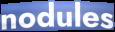
nodules